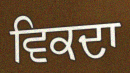
ਵਿਕਦਾ